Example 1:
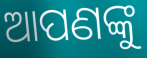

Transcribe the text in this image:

ଆପଣଙ୍କୁ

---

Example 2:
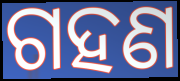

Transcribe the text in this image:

ଗହଣ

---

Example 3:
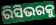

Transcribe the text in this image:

ରିସିଭରକୁ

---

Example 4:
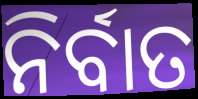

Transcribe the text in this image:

ନିର୍ବାତ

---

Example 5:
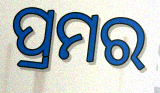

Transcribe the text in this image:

ପ୍ରମର